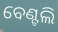
ବେଣ୍ଟଲି